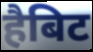
हैबिट